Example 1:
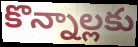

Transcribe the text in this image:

కొన్నాల్లకు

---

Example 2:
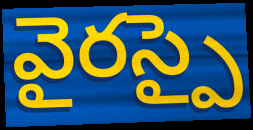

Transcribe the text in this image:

వైరస్పై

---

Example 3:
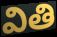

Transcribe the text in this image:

వితి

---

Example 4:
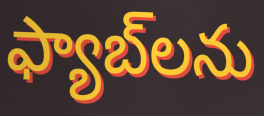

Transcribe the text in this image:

ఫ్యాబ్‌లను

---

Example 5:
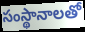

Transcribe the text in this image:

సంస్థానాలతో